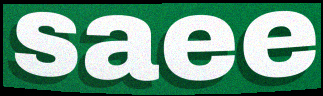
saee